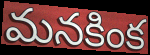
మనకింక